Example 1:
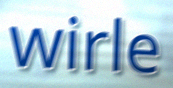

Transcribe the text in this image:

wirle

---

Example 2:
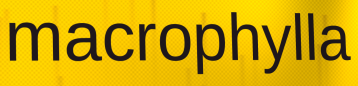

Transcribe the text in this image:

macrophylla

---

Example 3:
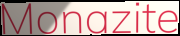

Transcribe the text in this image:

Monazite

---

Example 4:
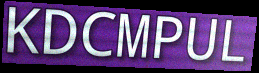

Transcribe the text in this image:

KDCMPUL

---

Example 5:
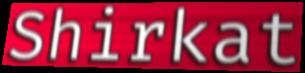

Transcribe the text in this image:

Shirkat